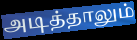
அடித்தாலும்